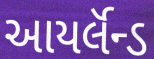
આયર્લૅન્ડ